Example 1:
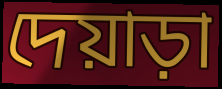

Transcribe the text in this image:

দেয়াড়া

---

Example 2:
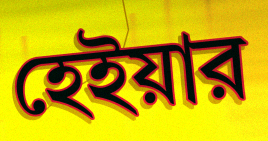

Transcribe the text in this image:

হেইয়ার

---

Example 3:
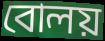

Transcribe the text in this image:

বোলয়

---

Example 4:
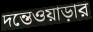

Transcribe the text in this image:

দন্তেওয়াড়ার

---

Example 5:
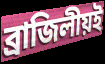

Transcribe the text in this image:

ব্রাজিলীয়ই